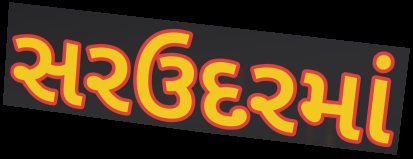
સરઉદરમાં